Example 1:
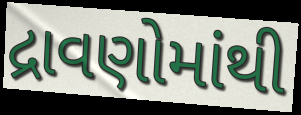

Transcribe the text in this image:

દ્રાવણોમાંથી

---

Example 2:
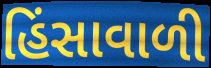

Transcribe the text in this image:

હિંસાવાળી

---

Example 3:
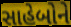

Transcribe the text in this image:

સાહેબોને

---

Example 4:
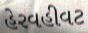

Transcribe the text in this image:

હેરવહીવટ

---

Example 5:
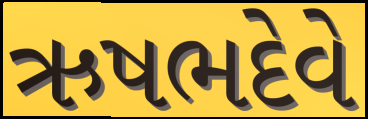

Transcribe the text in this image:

ઋષભદેવે